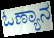
ಓಣ್ಯಾನ